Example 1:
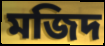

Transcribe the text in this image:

মজিদ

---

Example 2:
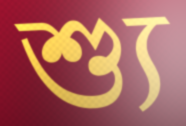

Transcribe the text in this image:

শ্যু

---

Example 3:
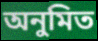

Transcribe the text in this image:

অনুমিত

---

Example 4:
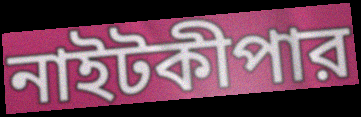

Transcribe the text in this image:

নাইটকীপার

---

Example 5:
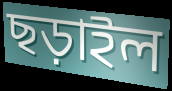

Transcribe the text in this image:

ছড়াইল